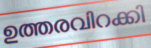
ഉത്തരവിറക്കി